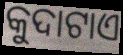
କୁଦାଟାଏ